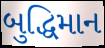
બુદ્ધિમાન